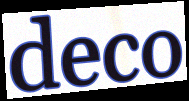
deco